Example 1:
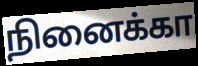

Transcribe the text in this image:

நினைக்கா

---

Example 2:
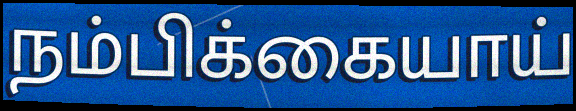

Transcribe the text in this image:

நம்பிக்கையாய்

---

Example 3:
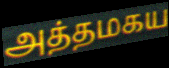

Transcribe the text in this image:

அத்தமகய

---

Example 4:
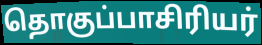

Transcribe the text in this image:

தொகுப்பாசிரியர்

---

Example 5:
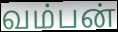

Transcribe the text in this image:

வம்பன்